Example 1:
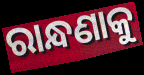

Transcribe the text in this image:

ରାନ୍ଧଣାକୁ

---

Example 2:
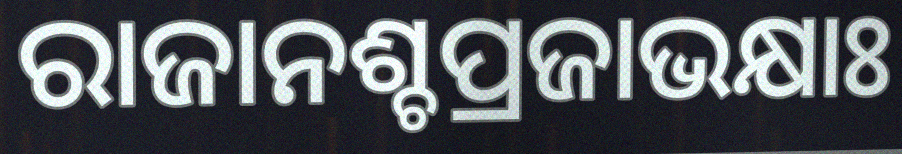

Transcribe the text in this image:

ରାଜାନଶ୍ଚପ୍ରଜାଭକ୍ଷାଃ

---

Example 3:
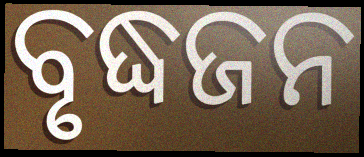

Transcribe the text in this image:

ବୃଦ୍ଧଜନ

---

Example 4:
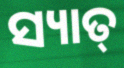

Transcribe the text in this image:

ସ୍ୟାତ୍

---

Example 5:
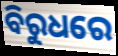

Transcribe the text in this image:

ବିରୁଧରେ